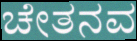
ಚೇತನವ